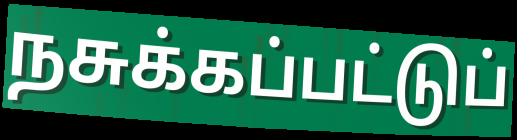
நசுக்கப்பட்டுப்